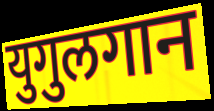
युगुलगान